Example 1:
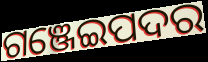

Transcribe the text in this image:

ଗଞ୍ଜେଇପଦର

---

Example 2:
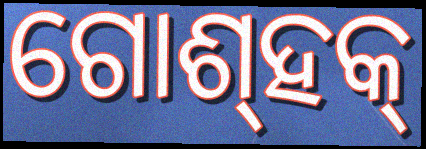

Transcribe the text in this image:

ଗୋଶ୍‍ହକ୍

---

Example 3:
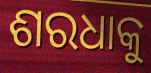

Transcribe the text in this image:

ଶରଧାକୁ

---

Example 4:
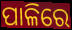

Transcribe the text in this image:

ପାଳିରେ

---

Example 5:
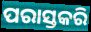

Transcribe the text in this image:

ପରାସ୍ତକରି